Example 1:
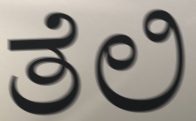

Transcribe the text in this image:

ತೆಲಿ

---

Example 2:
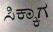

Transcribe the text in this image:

ಸಿಕ್ಕಾಗ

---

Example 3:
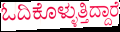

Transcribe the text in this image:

ಓದಿಕೊಳ್ಳುತ್ತಿದ್ದಾರೆ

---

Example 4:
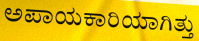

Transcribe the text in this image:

ಅಪಾಯಕಾರಿಯಾಗಿತ್ತು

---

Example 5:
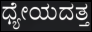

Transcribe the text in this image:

ಧ್ಯೇಯದತ್ತ